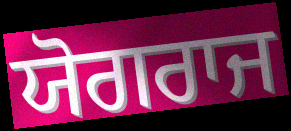
ਯੋਗਰਾਜ